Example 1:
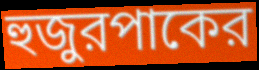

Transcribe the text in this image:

হুজুরপাকের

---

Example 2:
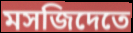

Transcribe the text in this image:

মসজিদেতে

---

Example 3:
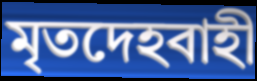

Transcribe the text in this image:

মৃতদেহবাহী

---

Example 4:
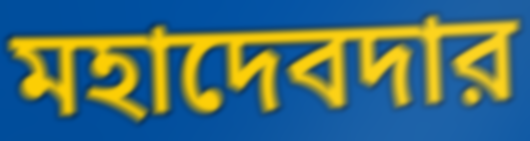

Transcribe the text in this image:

মহাদেবদার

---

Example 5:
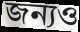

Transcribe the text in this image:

জন্যও